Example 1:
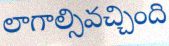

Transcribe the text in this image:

లాగాల్సివచ్చింది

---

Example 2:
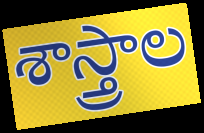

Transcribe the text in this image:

శాస్త్రాల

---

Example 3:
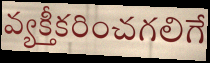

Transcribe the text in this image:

వ్యక్తీకరించగలిగే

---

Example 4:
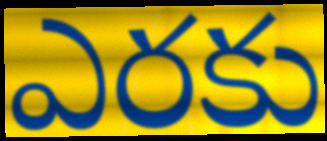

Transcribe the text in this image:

ఎరకు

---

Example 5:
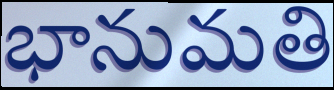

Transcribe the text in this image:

భానుమతి